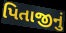
પિતાજીનું